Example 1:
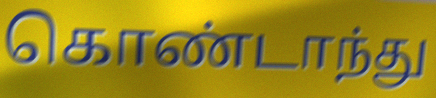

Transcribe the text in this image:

கொண்டாந்து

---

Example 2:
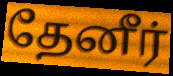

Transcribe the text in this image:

தேனீர்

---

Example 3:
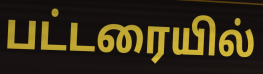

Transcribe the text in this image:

பட்டரையில்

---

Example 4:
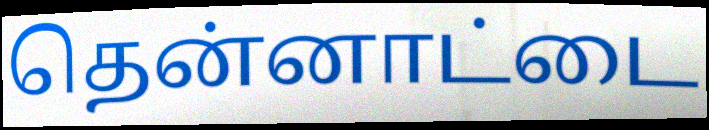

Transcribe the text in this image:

தென்னாட்டை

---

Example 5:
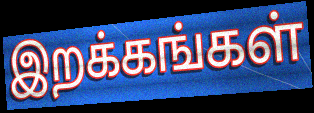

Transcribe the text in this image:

இறக்கங்கள்